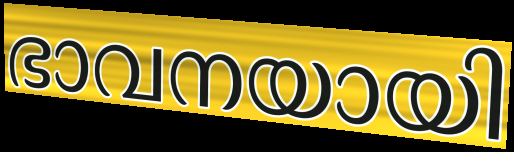
ഭാവനയായി